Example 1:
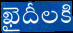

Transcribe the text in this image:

ఖైదీలకి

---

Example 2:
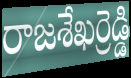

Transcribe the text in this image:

రాజశేఖర్రెడ్డి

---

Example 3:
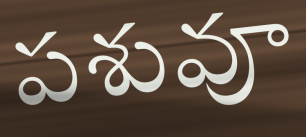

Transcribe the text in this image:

పశువూ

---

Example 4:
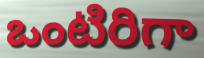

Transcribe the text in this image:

ఒంటిరిగా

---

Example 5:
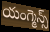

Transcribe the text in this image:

యంగ్మెన్స్